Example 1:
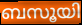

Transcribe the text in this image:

ബസൂയി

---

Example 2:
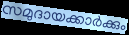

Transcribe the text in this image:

സമുദായക്കാർക്കും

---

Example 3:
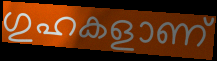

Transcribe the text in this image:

ഗുഹകളാണ്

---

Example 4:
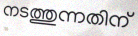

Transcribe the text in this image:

നടത്തുന്നതിന്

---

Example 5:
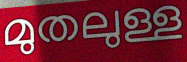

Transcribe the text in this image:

മുതലുള്ള